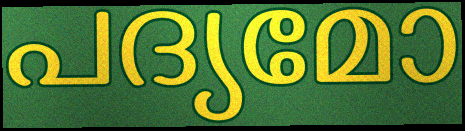
പദ്യമോ